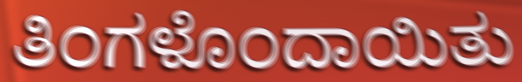
ತಿಂಗಳೊಂದಾಯಿತು